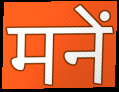
मनें